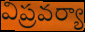
విప్రవర్యా